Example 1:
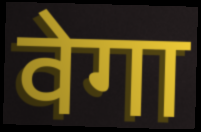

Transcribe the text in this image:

वेगा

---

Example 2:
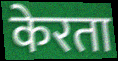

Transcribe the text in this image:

केरता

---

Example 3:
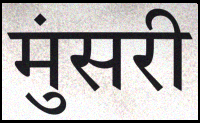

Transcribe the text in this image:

मुंसरी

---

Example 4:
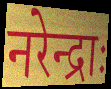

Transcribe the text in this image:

नरेन्द्राः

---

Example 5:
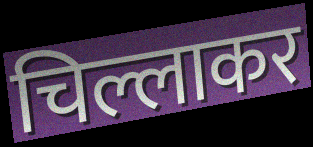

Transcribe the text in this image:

चिल्लाकर